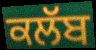
ਕਲੱਬ